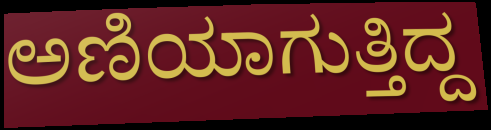
ಅಣಿಯಾಗುತ್ತಿದ್ದ